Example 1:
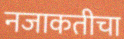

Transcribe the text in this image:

नजाकतीचा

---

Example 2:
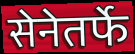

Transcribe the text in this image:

सेनेतर्फे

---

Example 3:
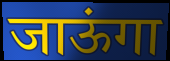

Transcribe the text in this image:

जाऊंगा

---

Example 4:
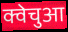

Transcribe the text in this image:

क्वेचुआ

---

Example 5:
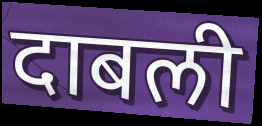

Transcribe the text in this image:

दाबली